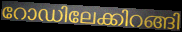
റോഡിലേക്കിറങ്ങി